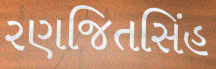
રણજિતસિંહ